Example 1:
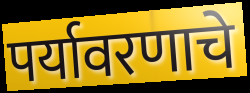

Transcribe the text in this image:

पर्यावरणाचे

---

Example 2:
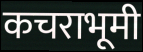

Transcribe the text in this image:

कचराभूमी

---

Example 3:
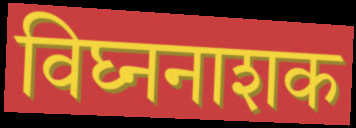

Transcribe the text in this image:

विघ्ननाशक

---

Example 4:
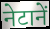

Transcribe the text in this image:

नेटानें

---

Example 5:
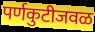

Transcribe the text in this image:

पर्णकुटीजवळ